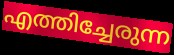
എത്തിച്ചേരുന്ന